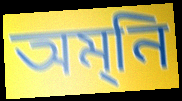
অম্‌নি